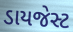
ડાયજેસ્ટ